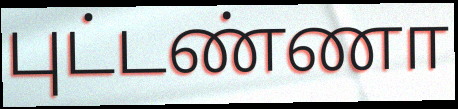
புட்டண்ணா